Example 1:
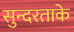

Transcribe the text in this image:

सुन्दरताके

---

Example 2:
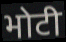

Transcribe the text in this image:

भोटी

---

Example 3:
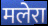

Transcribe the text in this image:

मलेरा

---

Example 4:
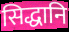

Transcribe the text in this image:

सिद्धानि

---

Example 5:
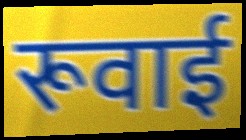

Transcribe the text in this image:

रूवाई